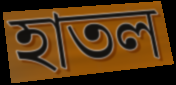
হাতল